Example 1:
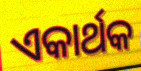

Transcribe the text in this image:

ଏକାର୍ଥକ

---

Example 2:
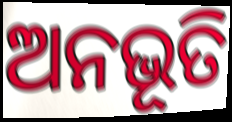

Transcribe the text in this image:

ଅନଭୂତି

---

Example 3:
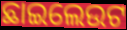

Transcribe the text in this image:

ଛାଇଲେଉଟ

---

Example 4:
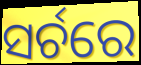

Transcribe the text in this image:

ସର୍ଚରେ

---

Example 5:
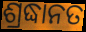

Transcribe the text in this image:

ଶ୍ରଦ୍ଧାନତ